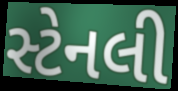
સ્ટેનલી